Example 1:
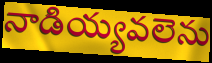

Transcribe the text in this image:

నాడియ్యవలెను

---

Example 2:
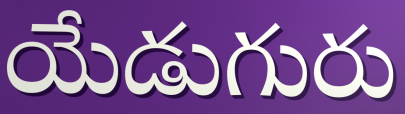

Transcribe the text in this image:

యేడుగురు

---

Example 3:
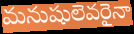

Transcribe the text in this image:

మనుషులెవరైనా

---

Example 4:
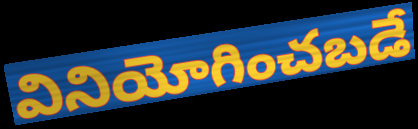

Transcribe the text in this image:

వినియోగించబడే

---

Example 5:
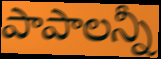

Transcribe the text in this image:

పాపాలన్నీ